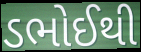
ડભોઈથી